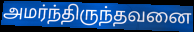
அமர்ந்திருந்தவனை